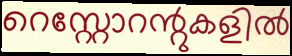
റെസ്റ്റോറന്റുകളിൽ